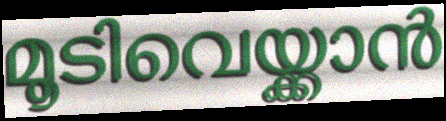
മൂടിവെയ്ക്കാൻ